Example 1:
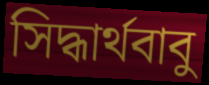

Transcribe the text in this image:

সিদ্ধার্থবাবু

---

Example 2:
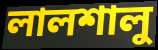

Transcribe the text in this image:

লালশালু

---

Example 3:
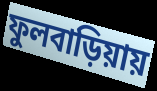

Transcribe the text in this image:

ফুলবাড়িয়ায়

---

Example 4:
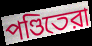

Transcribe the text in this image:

পণ্ডিতেরা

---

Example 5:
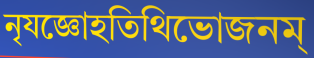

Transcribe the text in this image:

নৃযজ্ঞোহতিথিভোজনম্